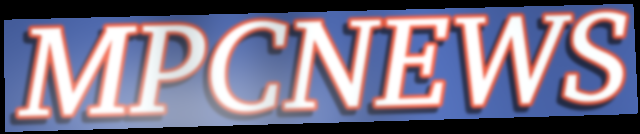
MPCNEWS